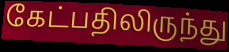
கேட்பதிலிருந்து